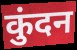
कुंदन